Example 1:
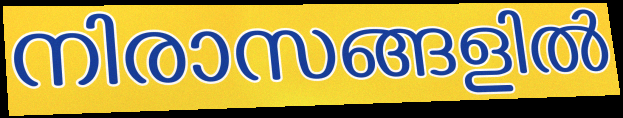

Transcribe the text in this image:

നിരാസങ്ങളിൽ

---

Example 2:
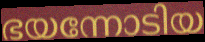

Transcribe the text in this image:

ഭയന്നോടിയ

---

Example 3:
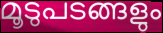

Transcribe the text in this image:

മൂടുപടങ്ങളും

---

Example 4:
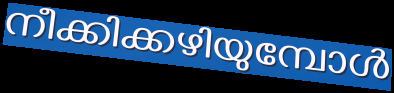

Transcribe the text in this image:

നീക്കിക്കഴിയുമ്പോൾ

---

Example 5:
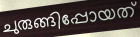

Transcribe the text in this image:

ചുരുങ്ങിപ്പോയത്